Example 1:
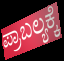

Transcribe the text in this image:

ಪ್ರಾಬಲ್ಯಕ್ಕೆ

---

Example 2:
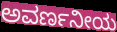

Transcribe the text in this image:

ಅವರ್ಣನೀಯ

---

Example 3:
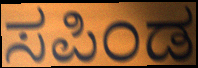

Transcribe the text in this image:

ಸಪಿಂಡ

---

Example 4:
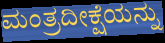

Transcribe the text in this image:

ಮಂತ್ರದೀಕ್ಷೆಯನ್ನು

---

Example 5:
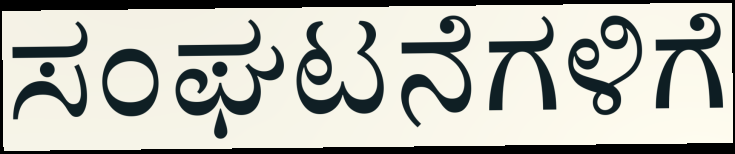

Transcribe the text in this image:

ಸಂಘಟನೆಗಳಿಗೆ